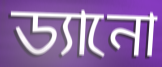
ড্যানো